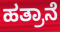
ಹತ್ರಾನೆ